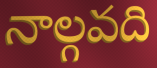
నాల్గవది